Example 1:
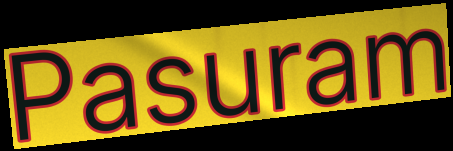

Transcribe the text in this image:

Pasuram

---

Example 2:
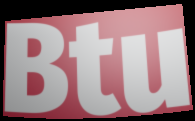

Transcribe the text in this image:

Btu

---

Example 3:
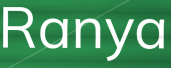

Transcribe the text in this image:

Ranya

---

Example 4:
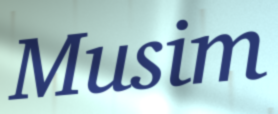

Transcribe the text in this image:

Musim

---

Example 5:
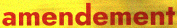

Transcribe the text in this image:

amendement